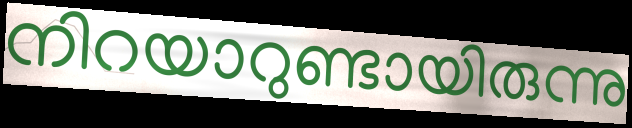
നിറയാറുണ്ടായിരുന്നു